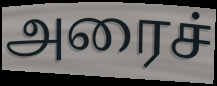
அரைச்